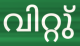
വിറ്റു്